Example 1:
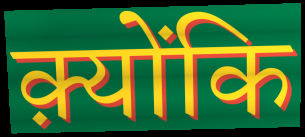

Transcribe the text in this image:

क़्योंकि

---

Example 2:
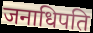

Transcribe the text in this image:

जनाधिपति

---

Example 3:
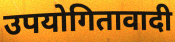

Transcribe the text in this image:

उपयोगितावादी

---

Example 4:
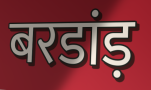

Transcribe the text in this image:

बरडांड़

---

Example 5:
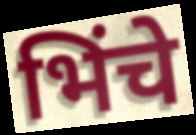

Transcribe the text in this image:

भिंचे